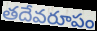
తదేవరూపం